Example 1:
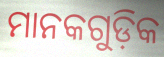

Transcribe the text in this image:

ମାନକଗୁଡ଼ିକ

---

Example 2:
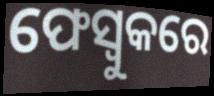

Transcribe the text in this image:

ଫେସ୍ବୁକରେ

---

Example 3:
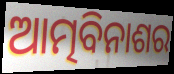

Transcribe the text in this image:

ଆତ୍ମବିନାଶର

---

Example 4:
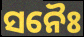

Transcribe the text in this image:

ସନୈଃ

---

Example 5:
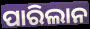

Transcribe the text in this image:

ପାରିଲାନ